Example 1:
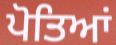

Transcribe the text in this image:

ਪੋਤਿਆਂ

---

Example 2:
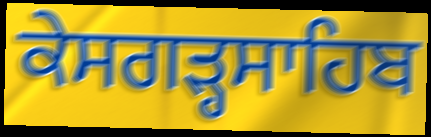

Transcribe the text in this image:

ਕੇਸਗੜ੍ਹਸਾਹਿਬ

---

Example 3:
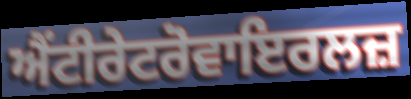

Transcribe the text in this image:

ਐਂਟੀਰੇਟਰੋਵਾਇਰਲਜ਼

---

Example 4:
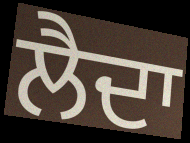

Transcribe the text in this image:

ਲੈਦਾ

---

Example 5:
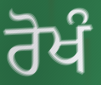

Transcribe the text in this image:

ਰੋਖੰ